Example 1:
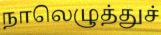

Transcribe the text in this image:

நாலெழுத்துச்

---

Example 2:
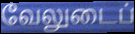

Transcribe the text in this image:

வேலுடைப்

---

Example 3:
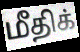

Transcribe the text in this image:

மீதிக்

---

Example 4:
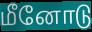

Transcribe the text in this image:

மீனோடு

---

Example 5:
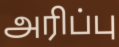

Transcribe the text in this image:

அரிப்பு